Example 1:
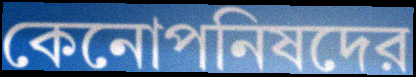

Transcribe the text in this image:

কেনোপনিষদের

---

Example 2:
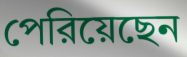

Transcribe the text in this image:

পেরিয়েছেন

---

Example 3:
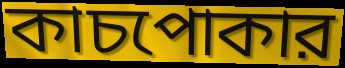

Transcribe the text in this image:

কাচপোকার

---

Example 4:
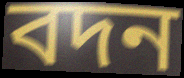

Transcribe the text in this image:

বদন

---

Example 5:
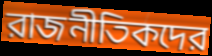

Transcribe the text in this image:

রাজনীতিকদের